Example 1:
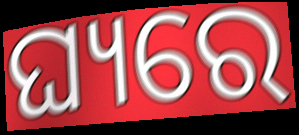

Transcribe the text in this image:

ଘ୍ୟରେ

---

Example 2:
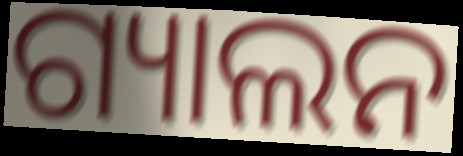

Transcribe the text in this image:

ଗ୍ୟାଲନ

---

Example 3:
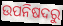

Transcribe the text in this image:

ଉପନିଷଦରୁ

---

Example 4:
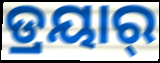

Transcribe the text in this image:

ଡ୍ରୟାର୍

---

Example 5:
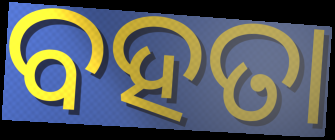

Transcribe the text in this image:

ବହତା